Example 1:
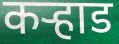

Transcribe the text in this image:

कऱ्हाड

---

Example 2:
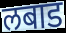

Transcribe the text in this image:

लबाड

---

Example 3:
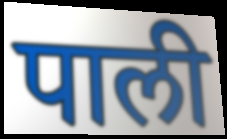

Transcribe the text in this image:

पाली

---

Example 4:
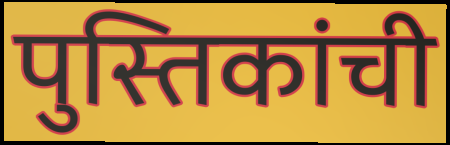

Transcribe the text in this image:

पुस्तिकांची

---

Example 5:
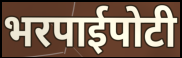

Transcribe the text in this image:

भरपाईपोटी